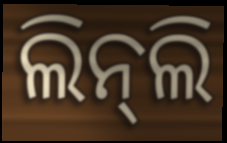
ଲିନ୍‌ଲି